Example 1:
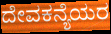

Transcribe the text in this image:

ದೇವಕನ್ಯೆಯರ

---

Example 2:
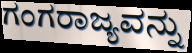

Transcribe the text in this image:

ಗಂಗರಾಜ್ಯವನ್ನು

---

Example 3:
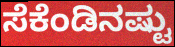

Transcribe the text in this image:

ಸೆಕೆಂಡಿನಷ್ಟು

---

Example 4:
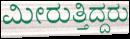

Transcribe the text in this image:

ಮೀರುತ್ತಿದ್ದರು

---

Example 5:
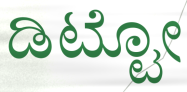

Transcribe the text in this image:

ಡಿಟ್ಟೋ